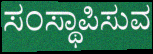
ಸಂಸ್ಥಾಪಿಸುವ